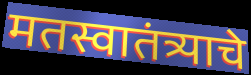
मतस्वातंत्र्याचे